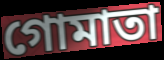
গোমাতা